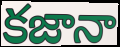
కజానా